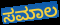
ಸಮಾಲ